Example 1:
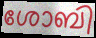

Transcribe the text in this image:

ശോബി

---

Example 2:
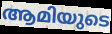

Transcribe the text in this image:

ആമിയുടെ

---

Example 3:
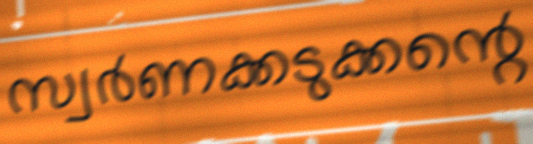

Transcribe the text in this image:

സ്വർണക്കടുക്കന്റെ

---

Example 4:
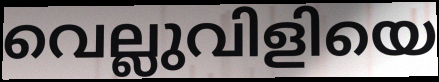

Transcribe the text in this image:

വെല്ലുവിളിയെ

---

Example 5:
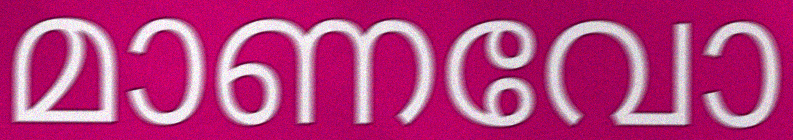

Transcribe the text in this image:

മാണവോ